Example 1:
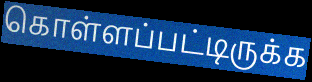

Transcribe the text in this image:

கொள்ளப்பட்டிருக்க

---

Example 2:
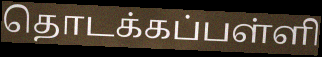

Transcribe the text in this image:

தொடக்கப்பள்ளி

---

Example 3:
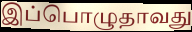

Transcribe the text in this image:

இப்பொழுதாவது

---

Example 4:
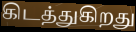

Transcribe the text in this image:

கிடத்துகிறது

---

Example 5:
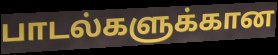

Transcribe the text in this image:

பாடல்களுக்கான